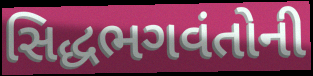
સિદ્ધભગવંતોની